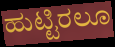
ಹುಟ್ಟಿರಲೂ